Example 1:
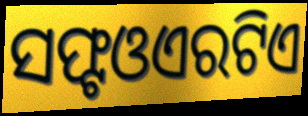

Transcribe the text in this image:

ସଫ୍ଟଓଏରଟିଏ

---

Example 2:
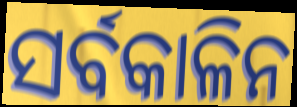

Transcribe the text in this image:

ସର୍ବକାଳିନ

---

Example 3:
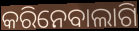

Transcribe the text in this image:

କରିନେବାଲାଗି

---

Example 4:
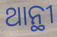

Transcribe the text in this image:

ଥାନ୍ଥୀ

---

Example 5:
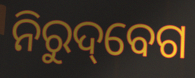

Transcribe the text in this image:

ନିରୁଦ୍‌ବେଗ